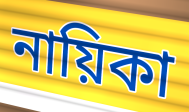
নায়িকা